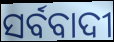
ସର୍ବବାଦୀ